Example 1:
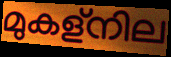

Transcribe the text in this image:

മുകള്നില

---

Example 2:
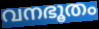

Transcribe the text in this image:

വനഭൂതം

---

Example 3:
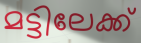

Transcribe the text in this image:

മട്ടിലേക്ക്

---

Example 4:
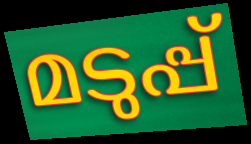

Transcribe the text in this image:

മടുപ്പ്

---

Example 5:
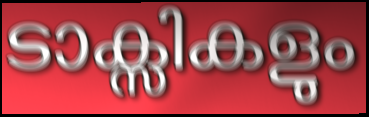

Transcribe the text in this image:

ടാക്സികളും